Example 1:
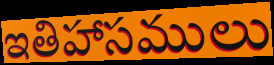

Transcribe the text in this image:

ఇతిహాసములు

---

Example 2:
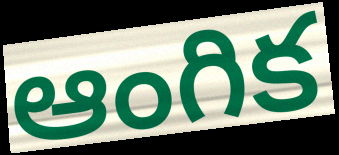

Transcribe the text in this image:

ఆంగిక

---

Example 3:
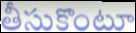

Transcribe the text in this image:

తీసుకొంటూ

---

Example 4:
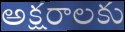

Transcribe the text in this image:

అక్షరాలకు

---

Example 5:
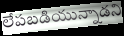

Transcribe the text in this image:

లేపబడియున్నాడని